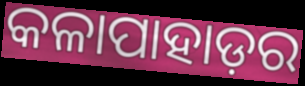
କଳାପାହାଡ଼ର